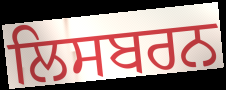
ਲਿਸਬਰਨ